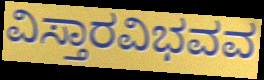
ವಿಸ್ತಾರವಿಭವವ